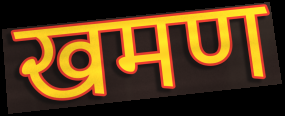
खमण